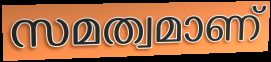
സമത്വമാണ്